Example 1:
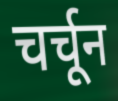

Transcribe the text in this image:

चर्चून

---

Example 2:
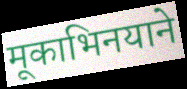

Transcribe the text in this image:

मूकाभिनयाने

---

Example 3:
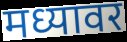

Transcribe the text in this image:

मध्यावर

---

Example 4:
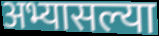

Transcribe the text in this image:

अभ्यासल्या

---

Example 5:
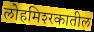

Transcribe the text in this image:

लोहमिश्रकातील